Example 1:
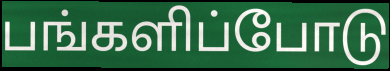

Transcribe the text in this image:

பங்களிப்போடு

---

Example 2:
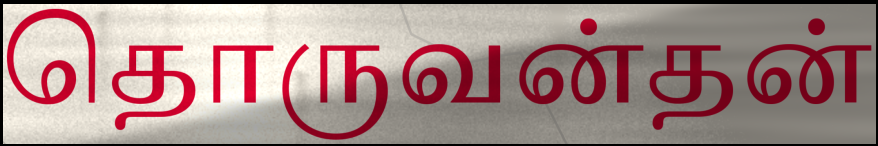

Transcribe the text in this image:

தொருவன்தன்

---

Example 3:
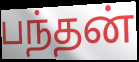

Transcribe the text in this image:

பந்தன்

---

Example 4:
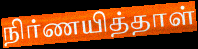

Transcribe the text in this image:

நிர்ணயித்தாள்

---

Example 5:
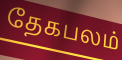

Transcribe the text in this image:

தேகபலம்